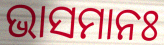
ଭାସମାନଃ